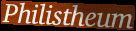
Philistheum